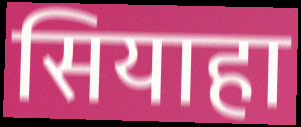
सियाहा